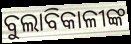
ବୁଲାବିକାଳୀଙ୍କ